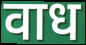
वाध